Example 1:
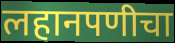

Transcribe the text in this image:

लहानपणीचा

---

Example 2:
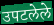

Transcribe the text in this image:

उपटलेले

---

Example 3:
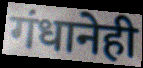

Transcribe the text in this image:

गंधानेही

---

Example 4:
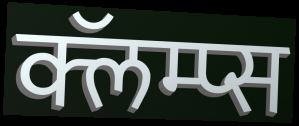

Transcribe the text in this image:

क्लॅम्प्स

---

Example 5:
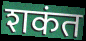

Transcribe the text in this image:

शकंत